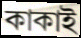
কাকাই